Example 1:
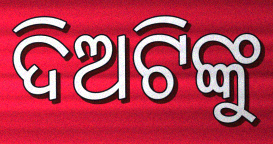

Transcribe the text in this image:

ଦିଅଟିଙ୍କୁ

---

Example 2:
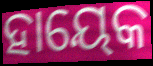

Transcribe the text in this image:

ହାୟେକ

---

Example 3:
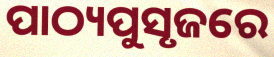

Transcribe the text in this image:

ପାଠ୍ୟପୁସୃଜରେ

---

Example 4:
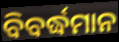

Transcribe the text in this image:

ବିବର୍ଦ୍ଧମାନ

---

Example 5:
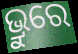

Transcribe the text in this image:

ଭ୍ରୁରେ